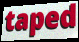
taped